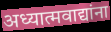
अध्यात्मवाद्यांना